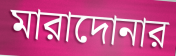
মারাদোনার